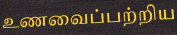
உணவைப்பற்றிய